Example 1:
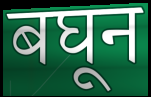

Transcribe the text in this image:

बघून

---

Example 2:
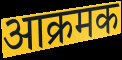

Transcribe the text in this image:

आक्रमक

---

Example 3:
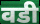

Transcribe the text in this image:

वडी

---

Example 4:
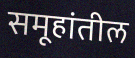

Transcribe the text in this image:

समूहांतील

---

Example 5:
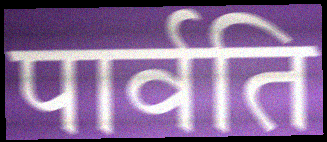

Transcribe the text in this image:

पार्वति